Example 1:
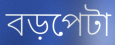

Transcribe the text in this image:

বড়পেটা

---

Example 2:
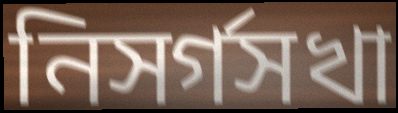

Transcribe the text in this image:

নিসর্গসখা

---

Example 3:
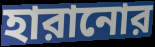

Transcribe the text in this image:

হারানোর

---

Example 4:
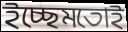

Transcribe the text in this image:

ইচ্ছেমতোই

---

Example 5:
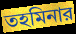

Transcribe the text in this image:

তহমিনার